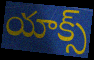
యాక్స్